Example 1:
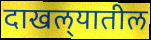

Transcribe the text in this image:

दाखल्यातील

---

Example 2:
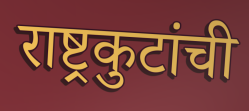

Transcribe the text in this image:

राष्ट्रकुटांची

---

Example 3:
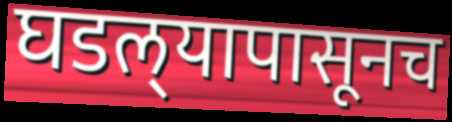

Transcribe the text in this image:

घडल्यापासूनच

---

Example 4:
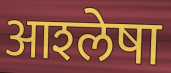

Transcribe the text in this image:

आश्‍लेषा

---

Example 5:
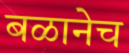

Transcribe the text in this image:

बळानेच